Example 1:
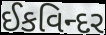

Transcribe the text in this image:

ઈકવિન્દર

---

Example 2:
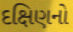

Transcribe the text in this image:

દક્ષિણનો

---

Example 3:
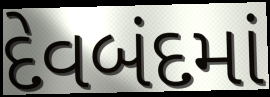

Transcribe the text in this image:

દેવબંદમાં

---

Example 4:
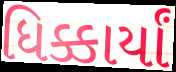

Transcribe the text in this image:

ધિક્કાર્યાં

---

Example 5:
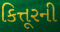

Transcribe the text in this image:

કિત્તૂરની